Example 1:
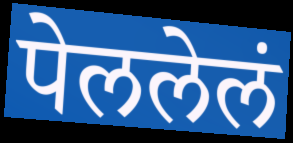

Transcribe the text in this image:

पेललेलं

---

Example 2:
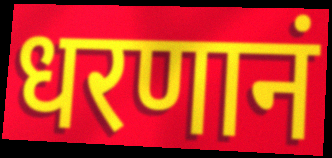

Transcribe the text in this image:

धरणानं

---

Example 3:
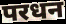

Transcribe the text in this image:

परधन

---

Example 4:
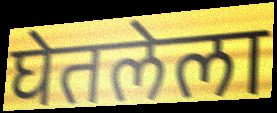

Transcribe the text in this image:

घेतलेला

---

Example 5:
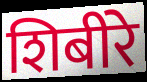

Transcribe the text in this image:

शिबीरे